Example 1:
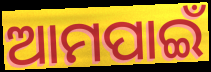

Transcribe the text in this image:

ଆମପାଇଁ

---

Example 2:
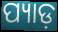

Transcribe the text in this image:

ପ୍ୟାଡ଼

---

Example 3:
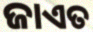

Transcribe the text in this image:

ଜାଏତ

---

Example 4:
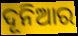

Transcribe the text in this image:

ଦୂନିଆର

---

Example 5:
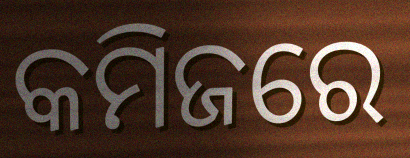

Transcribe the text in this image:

କମିଜରେ